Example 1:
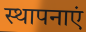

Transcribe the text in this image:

स्थापनाएं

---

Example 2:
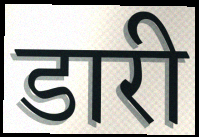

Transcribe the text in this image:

डारी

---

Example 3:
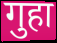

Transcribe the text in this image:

गुहा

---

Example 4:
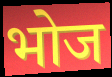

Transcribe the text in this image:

भोज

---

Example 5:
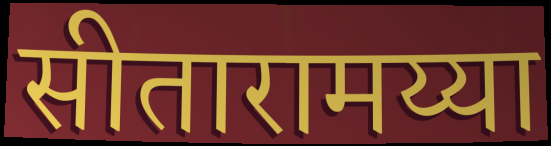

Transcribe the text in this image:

सीतारामय्या